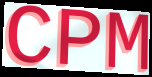
CPM